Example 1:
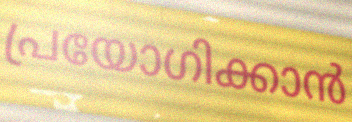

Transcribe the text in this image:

പ്രയോഗിക്കാൻ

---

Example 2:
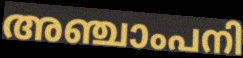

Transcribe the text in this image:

അഞ്ചാംപനി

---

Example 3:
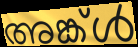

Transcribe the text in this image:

അങ്ക്ൾ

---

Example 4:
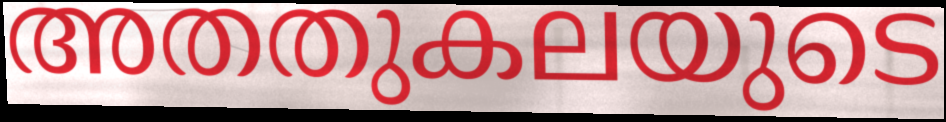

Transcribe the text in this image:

അതതുകലയുടെ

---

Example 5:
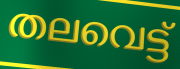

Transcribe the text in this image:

തലവെട്ട്